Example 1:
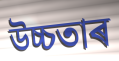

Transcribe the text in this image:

উচ্চতাৰ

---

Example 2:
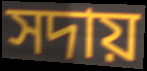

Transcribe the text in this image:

সদায়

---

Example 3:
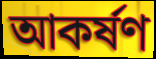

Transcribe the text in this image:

আকৰ্ষণ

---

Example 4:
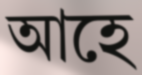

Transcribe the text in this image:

আহে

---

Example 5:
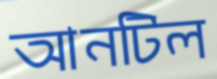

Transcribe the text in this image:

আনটিল